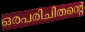
ഒരപരിചിതന്റെ